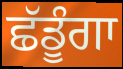
ਛੱਡੂੰਗਾ